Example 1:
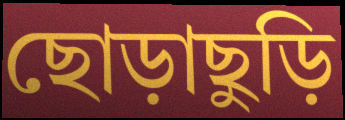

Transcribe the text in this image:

ছোড়াছুড়ি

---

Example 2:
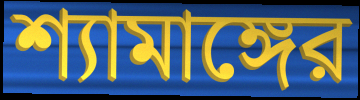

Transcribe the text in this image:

শ্যামাঙ্গের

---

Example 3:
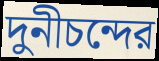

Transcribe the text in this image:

দুনীচন্দের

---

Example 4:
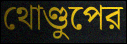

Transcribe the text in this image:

থোণ্ডুপের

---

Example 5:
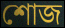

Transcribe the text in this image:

শোজ